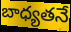
బాధ్యతనే